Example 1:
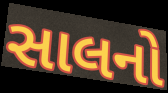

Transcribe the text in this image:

સાલનો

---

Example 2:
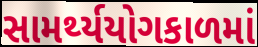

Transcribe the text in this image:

સામર્થ્યયોગકાળમાં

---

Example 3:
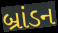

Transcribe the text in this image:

બ્રાંડન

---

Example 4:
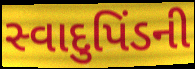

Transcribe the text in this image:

સ્વાદુપિંડની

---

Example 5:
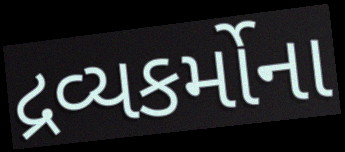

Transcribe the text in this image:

દ્રવ્યકર્મોના